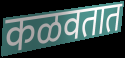
कळवतात